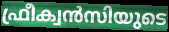
ഫ്രീക്വൻസിയുടെ